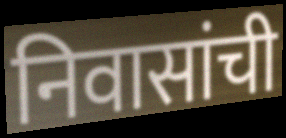
निवासांची